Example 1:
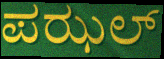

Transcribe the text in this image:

ಪಝಲ್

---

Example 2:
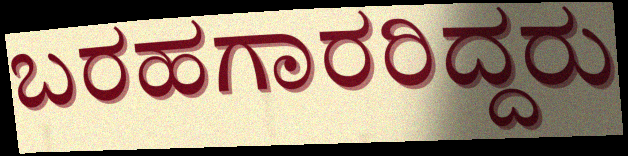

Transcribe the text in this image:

ಬರಹಗಾರರಿದ್ದರು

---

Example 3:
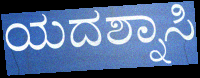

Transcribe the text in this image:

ಯದಶ್ನಾಸಿ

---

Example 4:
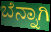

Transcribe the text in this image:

ಬೆನ್ನಾಗಿ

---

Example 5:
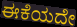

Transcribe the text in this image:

ಈಕೆಯದೇ